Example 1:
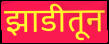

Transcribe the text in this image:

झाडीतून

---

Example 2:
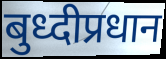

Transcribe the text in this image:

बुध्दीप्रधान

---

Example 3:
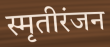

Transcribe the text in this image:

स्मृतीरंजन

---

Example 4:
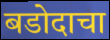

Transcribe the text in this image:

बडोदाचा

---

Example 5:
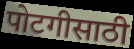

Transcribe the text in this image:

पोटगीसाठी